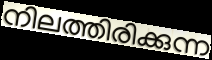
നിലത്തിരിക്കുന്ന